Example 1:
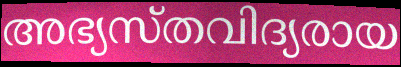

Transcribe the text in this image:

അഭ്യസ്തവിദ്യരായ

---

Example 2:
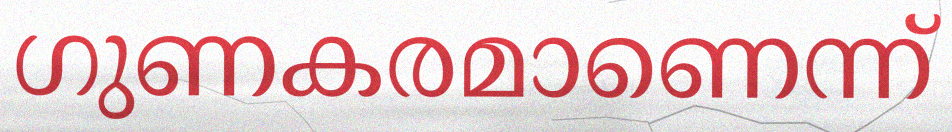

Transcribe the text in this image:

ഗുണകരമാണെന്ന്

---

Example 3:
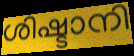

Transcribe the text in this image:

ശിഷ്ടാനി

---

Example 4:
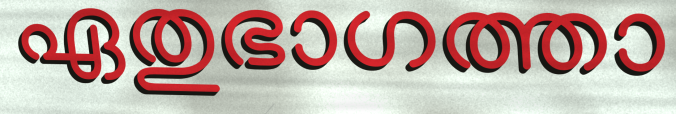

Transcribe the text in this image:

ഏതുഭാഗത്താ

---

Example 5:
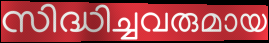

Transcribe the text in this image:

സിദ്ധിച്ചവരുമായ